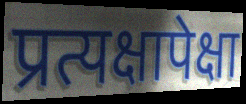
प्रत्यक्षापेक्षा